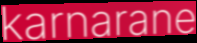
karnarane